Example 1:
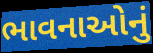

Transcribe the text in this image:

ભાવનાઓનું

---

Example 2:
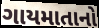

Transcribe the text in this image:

ગાયમાતાનો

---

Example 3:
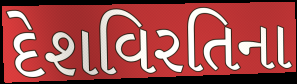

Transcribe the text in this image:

દેશવિરતિના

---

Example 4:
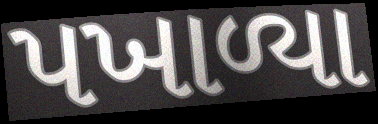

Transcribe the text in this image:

પખાળ્યા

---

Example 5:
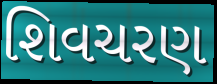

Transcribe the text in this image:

શિવચરણ